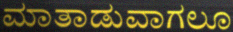
ಮಾತಾಡುವಾಗಲೂ